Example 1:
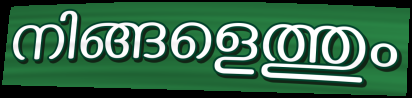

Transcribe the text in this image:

നിങ്ങളെത്തും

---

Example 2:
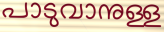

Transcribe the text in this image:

പാടുവാനുള്ള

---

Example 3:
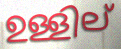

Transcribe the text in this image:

ഉള്ളില്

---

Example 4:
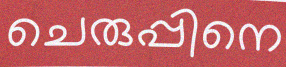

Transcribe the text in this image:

ചെരുപ്പിനെ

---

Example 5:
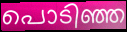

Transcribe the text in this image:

പൊടിഞ്ഞ